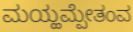
ಮಯ್ಹಮ್ಪೇತಂವ